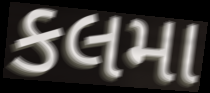
કલમા